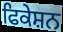
ਫਿਕੇਸ਼ਨ